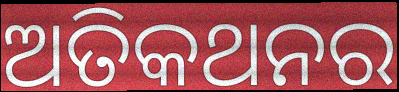
ଅତିକଥନର